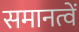
समानत्वें